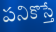
పనికొస్తే